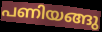
പണിയങ്ങു